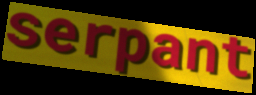
serpant